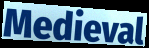
Medieval